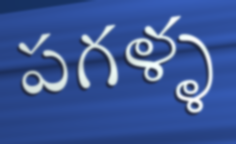
పగళ్ళ